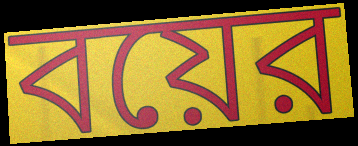
বয়ের